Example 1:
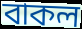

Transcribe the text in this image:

বাকল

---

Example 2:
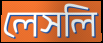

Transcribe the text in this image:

লেসলি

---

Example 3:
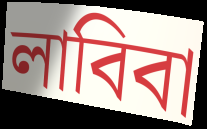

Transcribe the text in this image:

লাবিবা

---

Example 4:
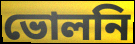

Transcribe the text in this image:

ভোলনি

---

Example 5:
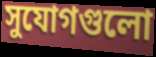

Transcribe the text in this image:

সুযোগগুলো